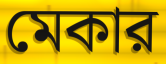
মেকার